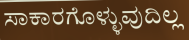
ಸಾಕಾರಗೊಳ್ಳುವುದಿಲ್ಲ